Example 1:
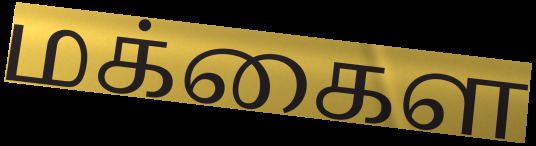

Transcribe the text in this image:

மக்கைள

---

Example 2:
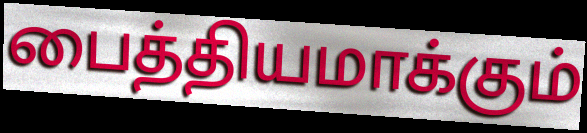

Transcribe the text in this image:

பைத்தியமாக்கும்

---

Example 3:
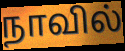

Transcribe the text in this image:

நாவில்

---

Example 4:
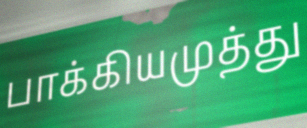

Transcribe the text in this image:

பாக்கியமுத்து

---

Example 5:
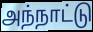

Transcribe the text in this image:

அந்நாட்டு